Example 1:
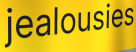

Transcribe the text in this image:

jealousies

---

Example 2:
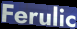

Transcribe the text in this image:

Ferulic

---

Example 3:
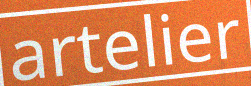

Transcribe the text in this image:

artelier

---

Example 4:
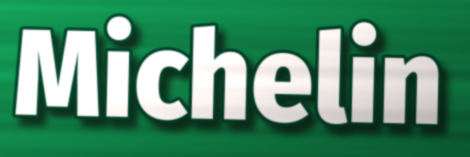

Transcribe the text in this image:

Michelin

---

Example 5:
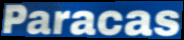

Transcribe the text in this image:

Paracas